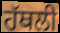
ਹੱਥਲੀ